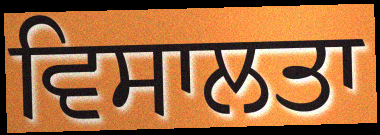
ਵਿਸਾਲਤਾ